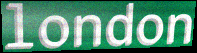
london